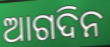
ଆଗଦିନ